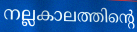
നല്ലകാലത്തിന്റെ